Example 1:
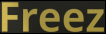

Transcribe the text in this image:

Freez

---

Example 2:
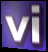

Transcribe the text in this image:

vi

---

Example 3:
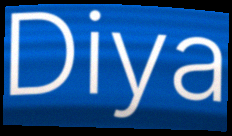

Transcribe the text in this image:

Diya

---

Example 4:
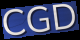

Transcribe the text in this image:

CGD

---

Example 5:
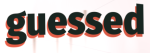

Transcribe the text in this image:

guessed